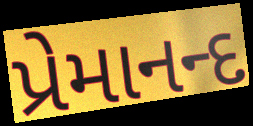
પ્રેમાનન્દ